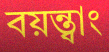
বয়ন্ত্বাং